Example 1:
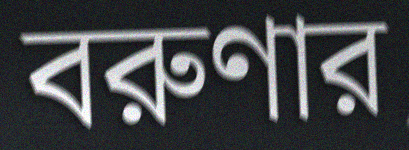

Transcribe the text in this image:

বরুণার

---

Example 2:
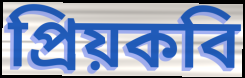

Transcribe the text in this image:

প্রিয়কবি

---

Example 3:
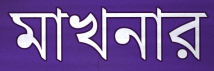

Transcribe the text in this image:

মাখনার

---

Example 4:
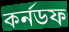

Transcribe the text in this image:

কর্নডফ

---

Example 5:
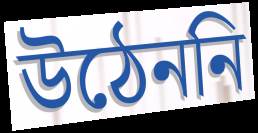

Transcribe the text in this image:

উঠেননি